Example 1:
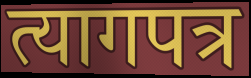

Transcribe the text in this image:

त्‍यागपत्र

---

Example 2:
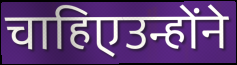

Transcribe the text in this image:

चाहिएउन्होंने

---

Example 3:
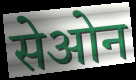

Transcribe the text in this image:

सेओन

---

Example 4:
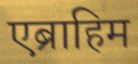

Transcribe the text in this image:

एब्राहिम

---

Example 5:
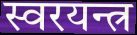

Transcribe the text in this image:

स्वरयन्त्र